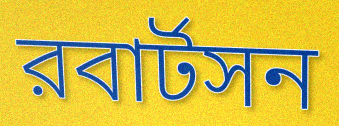
রবার্টসন